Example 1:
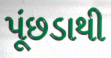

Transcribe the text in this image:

પૂંછડાથી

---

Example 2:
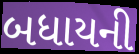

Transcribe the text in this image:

બધાયની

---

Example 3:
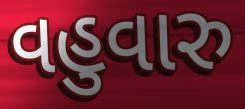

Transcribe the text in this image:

વહુવારુ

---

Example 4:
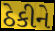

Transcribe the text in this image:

ઠેકીને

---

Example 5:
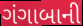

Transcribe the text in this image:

ગંગાબાની